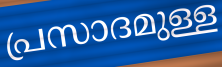
പ്രസാദമുള്ള